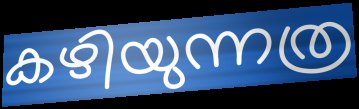
കഴിയുന്നത്ര